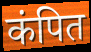
कंपित